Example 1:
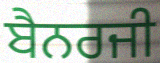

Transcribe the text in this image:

ਬੈਨਰਜੀ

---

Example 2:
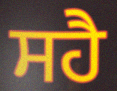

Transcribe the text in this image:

ਸਹੈ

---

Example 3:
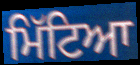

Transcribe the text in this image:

ਮਿੱਟਿਆ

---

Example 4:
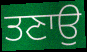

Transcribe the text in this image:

ਤਣਾਉ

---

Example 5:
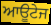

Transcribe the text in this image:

ਆਊਟੇਜ